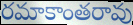
రమాకాంతరావు